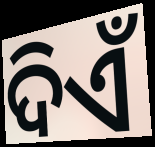
ଦିଏଁ